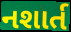
નશાર્ત